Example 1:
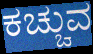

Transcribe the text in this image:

ಕಚ್ಚುವ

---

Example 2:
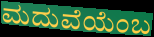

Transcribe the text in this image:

ಮದುವೆಯೆಂಬ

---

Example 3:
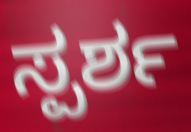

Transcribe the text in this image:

ಸ್ಪರ್ಶ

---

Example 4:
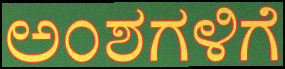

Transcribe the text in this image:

ಅಂಶಗಳಿಗೆ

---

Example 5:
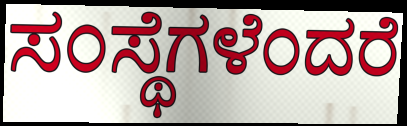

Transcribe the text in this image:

ಸಂಸ್ಥೆಗಳೆಂದರೆ